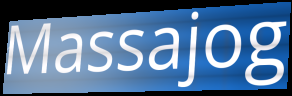
Massajog